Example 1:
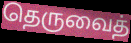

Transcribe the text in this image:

தெருவைத்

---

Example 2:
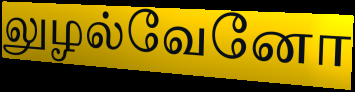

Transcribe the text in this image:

லுழல்வேனோ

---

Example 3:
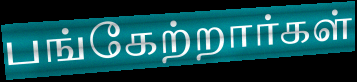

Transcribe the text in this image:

பங்கேற்றார்கள்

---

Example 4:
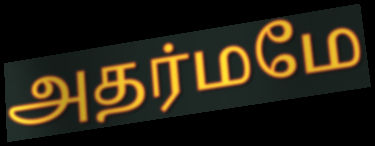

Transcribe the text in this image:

அதர்மமே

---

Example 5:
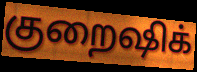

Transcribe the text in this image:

குறைஷிக்